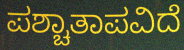
ಪಶ್ಚಾತಾಪವಿದೆ